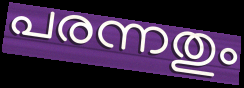
പരന്നതും